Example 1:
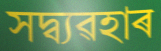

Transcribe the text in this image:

সদ্ব্যৱহাৰ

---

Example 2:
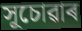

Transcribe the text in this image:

সূচোৱাৰ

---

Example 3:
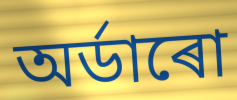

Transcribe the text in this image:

অৰ্ডাৰো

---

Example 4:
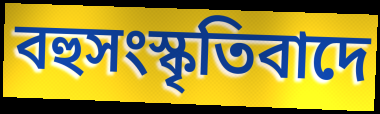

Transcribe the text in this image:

বহুসংস্কৃতিবাদে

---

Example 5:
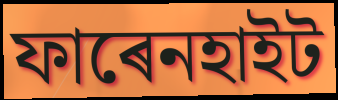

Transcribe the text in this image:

ফাৰেনহাইট